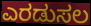
ಎರಡುಸಲ